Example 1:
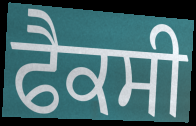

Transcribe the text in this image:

ਫੈਕਸੀ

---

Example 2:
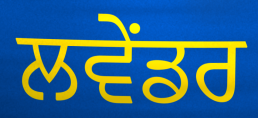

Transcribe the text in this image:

ਲਵੇਂਡਰ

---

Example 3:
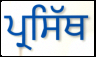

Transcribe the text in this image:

ਪ੍ਰਸਿੱਥ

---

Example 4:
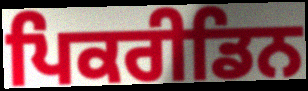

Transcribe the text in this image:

ਪਿਕਰੀਡਿਨ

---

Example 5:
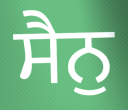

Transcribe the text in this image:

ਸੈਨੁ